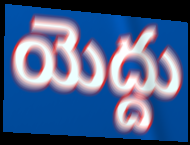
యెద్దు